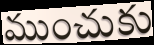
ముంచుకు